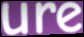
ure